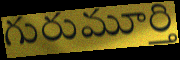
గురుమూర్తి